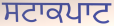
ਸਟਾਕਪਾਟ